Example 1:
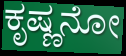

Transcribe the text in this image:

ಕೃಷ್ಣನೋ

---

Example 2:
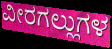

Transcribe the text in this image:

ವೀರಗಲ್ಲುಗಳ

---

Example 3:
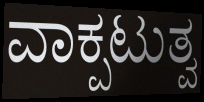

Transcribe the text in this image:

ವಾಕ್ಪಟುತ್ವ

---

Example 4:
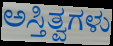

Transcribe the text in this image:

ಅಸ್ತಿತ್ವಗಳು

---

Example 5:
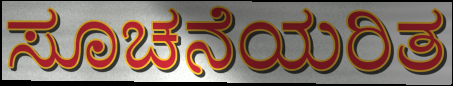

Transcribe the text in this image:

ಸೂಚನೆಯರಿತ